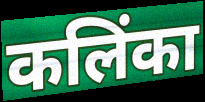
कलिंका